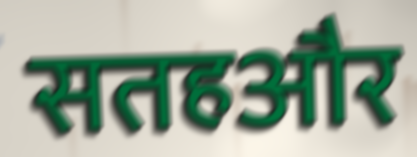
सतहऔर